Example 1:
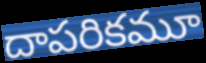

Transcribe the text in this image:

దాపరికమూ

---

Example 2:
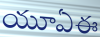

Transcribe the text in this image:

యూఏఈ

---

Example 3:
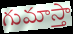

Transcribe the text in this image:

గుమాస్తా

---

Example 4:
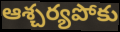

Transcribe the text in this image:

ఆశ్చర్యపోకు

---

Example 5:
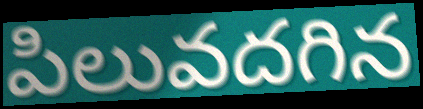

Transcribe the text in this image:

పిలువదగిన